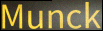
Munck